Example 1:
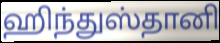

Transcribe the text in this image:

ஹிந்துஸ்தானி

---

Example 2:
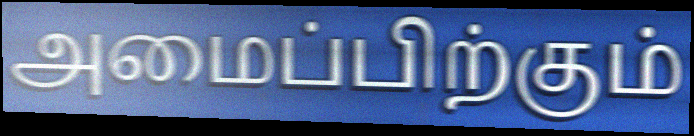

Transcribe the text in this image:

அமைப்பிற்கும்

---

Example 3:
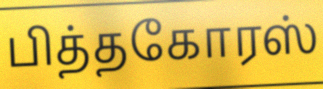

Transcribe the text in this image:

பித்தகோரஸ்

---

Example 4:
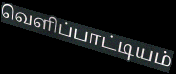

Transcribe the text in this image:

வெளிப்பாட்டியம்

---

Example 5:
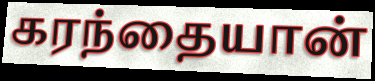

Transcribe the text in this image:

கரந்தையான்